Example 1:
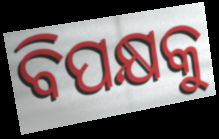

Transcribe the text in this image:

ବିପକ୍ଷକୁ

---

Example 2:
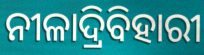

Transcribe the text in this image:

ନୀଳାଦ୍ରିବିହାରୀ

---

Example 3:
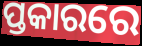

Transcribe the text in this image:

ପ୍ତକାରରେ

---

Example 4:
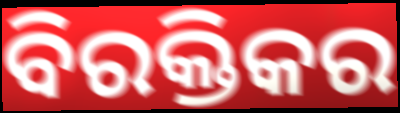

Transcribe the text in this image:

ବିରକ୍ତିକର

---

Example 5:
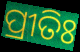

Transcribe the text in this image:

ପ୍ରୀତିଃ